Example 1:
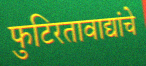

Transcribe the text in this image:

फुटिरतावाद्यांचे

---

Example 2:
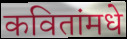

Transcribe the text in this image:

कवितांमधे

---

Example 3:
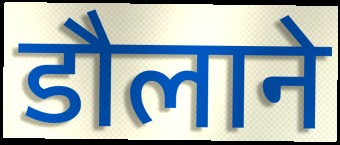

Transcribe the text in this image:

डौलाने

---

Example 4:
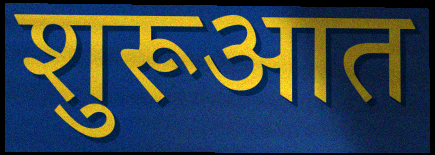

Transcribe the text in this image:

शुरूआत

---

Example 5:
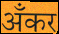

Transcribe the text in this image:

अँकर